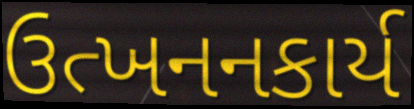
ઉત્ખનનકાર્ય